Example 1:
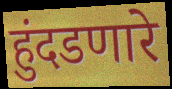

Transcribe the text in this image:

हुंदडणारे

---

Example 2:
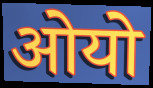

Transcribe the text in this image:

ओयो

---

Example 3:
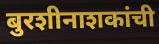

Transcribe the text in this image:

बुरशीनाशकांची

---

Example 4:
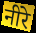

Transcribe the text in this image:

नीरे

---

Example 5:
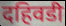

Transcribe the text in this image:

दहिवडी